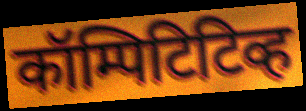
कॉम्पिटिटिव्ह